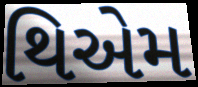
થિએમ